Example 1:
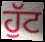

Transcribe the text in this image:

ਹੁੱਟ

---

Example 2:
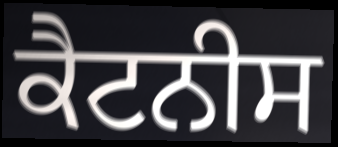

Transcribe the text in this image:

ਕੈਟਨੀਸ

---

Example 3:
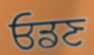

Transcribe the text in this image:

ਓਡਣ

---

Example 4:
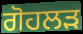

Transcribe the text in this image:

ਗੋਹਲੜ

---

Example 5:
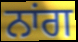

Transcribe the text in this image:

ਨਾਂਗ